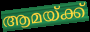
ആമയ്ക്ക്